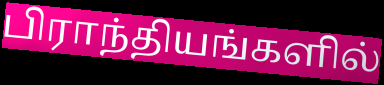
பிராந்தியங்களில்